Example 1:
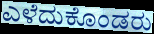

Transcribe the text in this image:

ಎಳೆದುಕೊಂಡರು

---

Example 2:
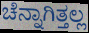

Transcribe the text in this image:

ಚೆನ್ನಾಗಿತ್ತಲ್ಲ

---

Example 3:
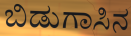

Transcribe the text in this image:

ಬಿಡುಗಾಸಿನ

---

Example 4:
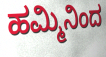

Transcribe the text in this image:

ಹಮ್ಮಿನಿಂದ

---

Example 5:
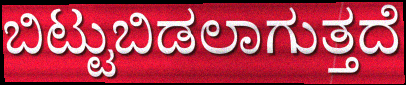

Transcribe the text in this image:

ಬಿಟ್ಟುಬಿಡಲಾಗುತ್ತದೆ